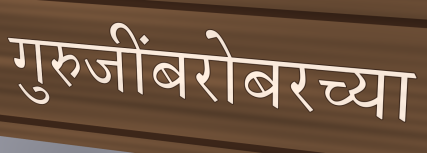
गुरुजींबरोबरच्या